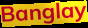
Banglay